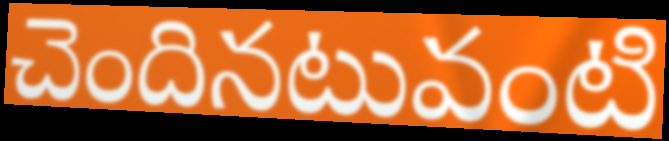
చెందినటువంటి